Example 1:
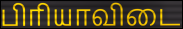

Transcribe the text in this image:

பிரியாவிடை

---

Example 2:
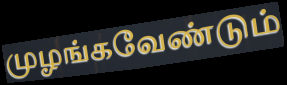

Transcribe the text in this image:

முழங்கவேண்டும்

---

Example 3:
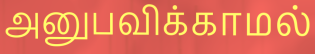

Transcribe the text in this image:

அனுபவிக்காமல்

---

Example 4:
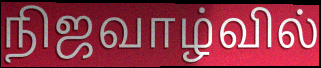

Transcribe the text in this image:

நிஜவாழ்வில்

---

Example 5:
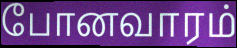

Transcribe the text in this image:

போனவாரம்